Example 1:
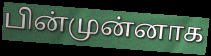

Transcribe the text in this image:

பின்முன்னாக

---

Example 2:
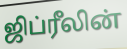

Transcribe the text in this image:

ஜிப்ரீலின்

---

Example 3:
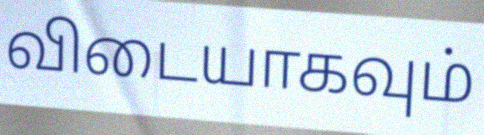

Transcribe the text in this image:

விடையாகவும்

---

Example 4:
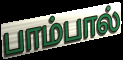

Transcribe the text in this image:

பாம்பால்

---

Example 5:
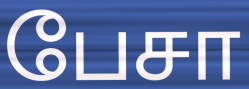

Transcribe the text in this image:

பேசா